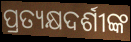
ପ୍ରତ୍ୟକ୍ଷଦର୍ଶୀଙ୍କ